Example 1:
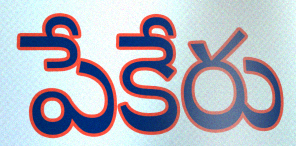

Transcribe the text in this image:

పేకేరు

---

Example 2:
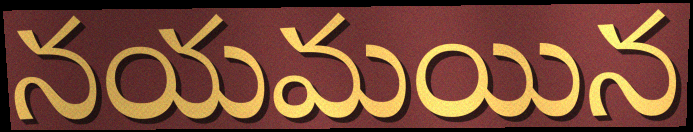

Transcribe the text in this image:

నయమయిన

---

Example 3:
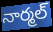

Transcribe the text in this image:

నార్మల్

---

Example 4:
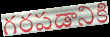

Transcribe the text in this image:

గరపడానికి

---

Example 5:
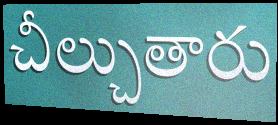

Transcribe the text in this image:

చీల్చుతారు